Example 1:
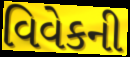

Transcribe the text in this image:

વિવેકની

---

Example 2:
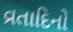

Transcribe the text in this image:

વ્રતાદિનો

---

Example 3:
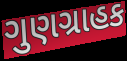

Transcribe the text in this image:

ગુણગ્રાહક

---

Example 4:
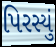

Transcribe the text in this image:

પિરસ્યું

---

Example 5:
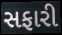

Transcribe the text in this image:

સફારી